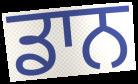
ਡਾਨ